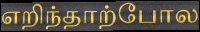
எறிந்தாற்போல